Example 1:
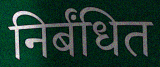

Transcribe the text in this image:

निर्बंधित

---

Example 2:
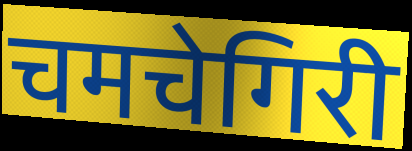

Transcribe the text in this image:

चमचेगिरी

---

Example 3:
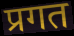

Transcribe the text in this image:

प्रगत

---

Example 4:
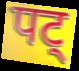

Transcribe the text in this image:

पट्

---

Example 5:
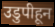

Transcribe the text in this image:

उडुपीहून